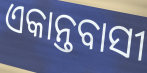
ଏକାନ୍ତବାସୀ